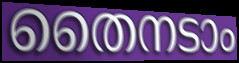
തൈനടാം